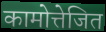
कामोत्तेजित